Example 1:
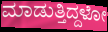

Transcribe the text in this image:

ಮಾಡುತ್ತಿದ್ದಳೋ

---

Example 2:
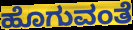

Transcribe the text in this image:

ಹೊಗುವಂತೆ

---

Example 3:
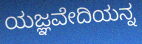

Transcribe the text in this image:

ಯಜ್ಞವೇದಿಯನ್ನ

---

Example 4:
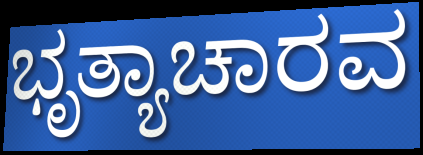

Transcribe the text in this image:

ಭೃತ್ಯಾಚಾರವ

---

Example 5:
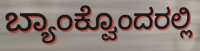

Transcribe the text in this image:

ಬ್ಯಾಂಕ್ವೊಂದರಲ್ಲಿ